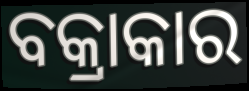
ବକ୍ରାକାର